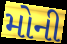
મોની